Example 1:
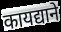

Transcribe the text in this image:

कायद्याने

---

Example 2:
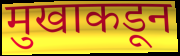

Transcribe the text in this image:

मुखाकडून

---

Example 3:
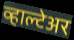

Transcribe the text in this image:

व्हाल्टेअर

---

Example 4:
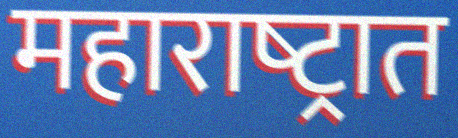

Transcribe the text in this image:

महाराष्‍ट्रात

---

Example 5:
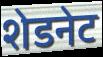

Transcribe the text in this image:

शेडनेट